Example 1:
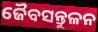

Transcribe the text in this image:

ଜୈବସନ୍ତୁଳନ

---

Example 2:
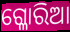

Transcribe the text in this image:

ଗ୍ଳୋରିଆ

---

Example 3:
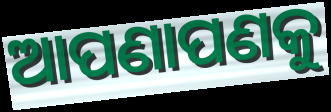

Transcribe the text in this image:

ଆପଣାପଣକୁ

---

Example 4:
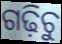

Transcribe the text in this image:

ଗଢ଼ିଚୁ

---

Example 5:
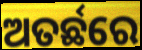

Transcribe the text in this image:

ଅତର୍ଛରେ